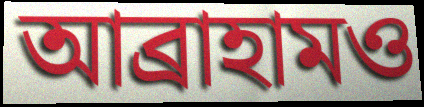
আব্রাহামও